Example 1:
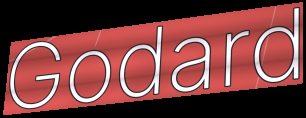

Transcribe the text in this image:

Godard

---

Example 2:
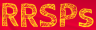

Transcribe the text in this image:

RRSPs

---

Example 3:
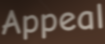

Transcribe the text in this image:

Appeal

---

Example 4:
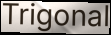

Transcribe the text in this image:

Trigonal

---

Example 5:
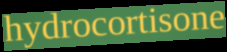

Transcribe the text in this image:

hydrocortisone